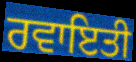
ਰਵਾਇਤੀ